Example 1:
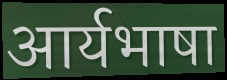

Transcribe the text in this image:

आर्यभाषा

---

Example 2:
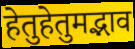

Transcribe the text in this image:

हेतुहेतुमद्भाव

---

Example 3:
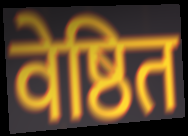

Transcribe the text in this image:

वेष्ठित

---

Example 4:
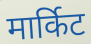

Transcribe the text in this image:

मार्किट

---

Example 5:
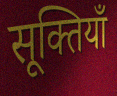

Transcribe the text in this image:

सूक्तियाँ